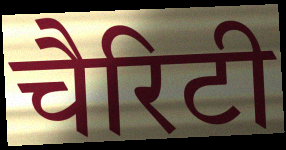
चैरिटी